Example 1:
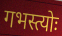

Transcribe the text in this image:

गभस्त्योः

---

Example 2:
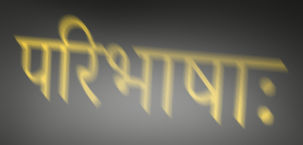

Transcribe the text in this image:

परिभाषाः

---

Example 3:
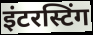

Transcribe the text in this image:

इंटरस्टिंग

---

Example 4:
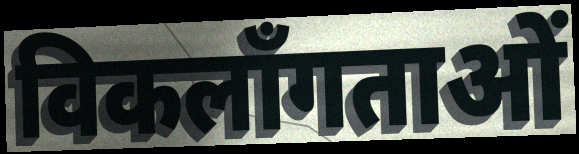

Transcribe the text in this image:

विकलाँगताओं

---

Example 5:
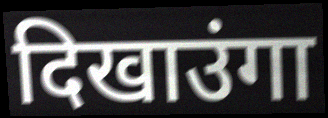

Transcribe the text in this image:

दिखाउंगा